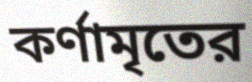
কর্ণামৃতের